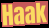
Haak